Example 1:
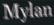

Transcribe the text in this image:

Mylan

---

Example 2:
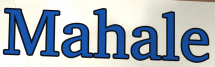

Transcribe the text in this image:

Mahale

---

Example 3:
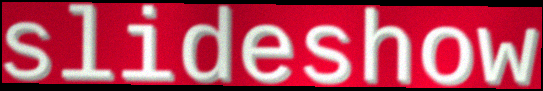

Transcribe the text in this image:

slideshow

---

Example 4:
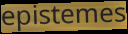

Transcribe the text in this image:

epistemes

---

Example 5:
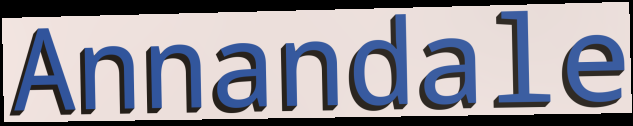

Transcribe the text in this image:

Annandale